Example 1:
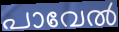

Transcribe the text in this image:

പാവേൽ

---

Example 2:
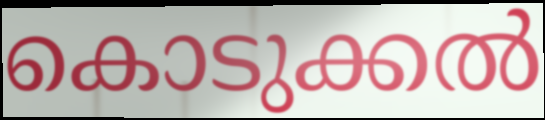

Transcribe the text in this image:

കൊടുക്കൽ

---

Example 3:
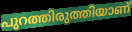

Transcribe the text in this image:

പുറത്തിരുത്തിയാണ്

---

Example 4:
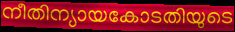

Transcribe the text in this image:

നീതിന്യായകോടതിയുടെ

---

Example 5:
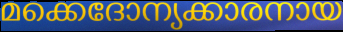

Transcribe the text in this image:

മക്കെദോന്യക്കാരനായ